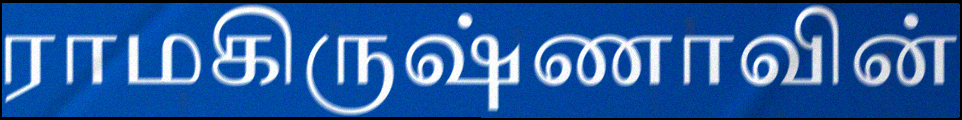
ராமகிருஷ்ணாவின்